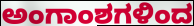
ಅಂಗಾಂಶಗಳಿಂದ